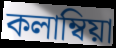
কলাম্বিয়া